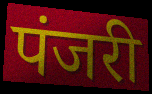
पंजरी